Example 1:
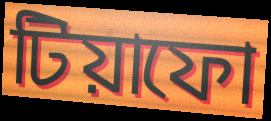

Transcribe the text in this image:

টিয়াফো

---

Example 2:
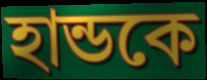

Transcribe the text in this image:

হান্ডকে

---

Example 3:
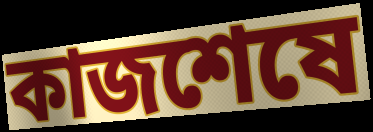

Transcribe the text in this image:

কাজশেষে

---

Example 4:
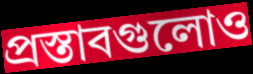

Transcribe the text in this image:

প্রস্তাবগুলোও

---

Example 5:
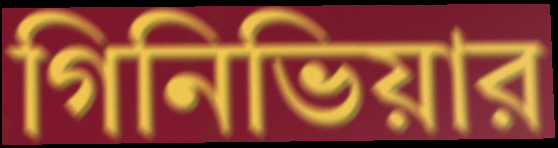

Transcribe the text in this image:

গিনিভিয়ার